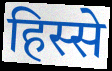
हिस्‍से